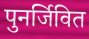
पुनर्जिवित